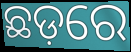
ଛଡ଼ରେ